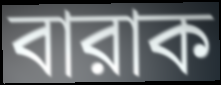
বারাক